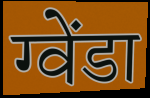
ग्वेंडा